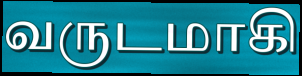
வருடமாகி